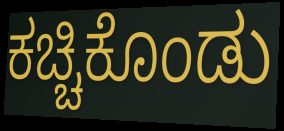
ಕಚ್ಚಿಕೊಂಡು